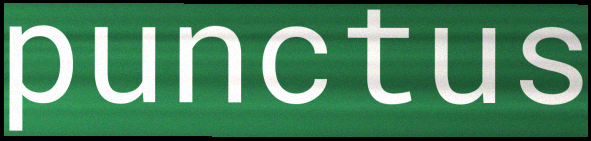
punctus